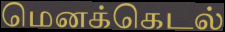
மெனக்கெடல்